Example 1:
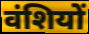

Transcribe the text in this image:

वंशियों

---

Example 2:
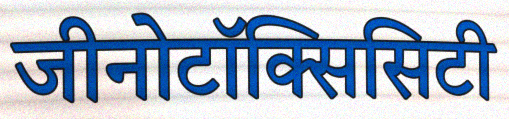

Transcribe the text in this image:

जीनोटॉक्सिसिटी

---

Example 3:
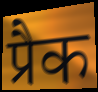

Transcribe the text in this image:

प्रैक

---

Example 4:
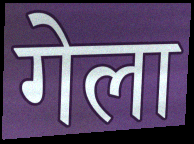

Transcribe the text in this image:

गेला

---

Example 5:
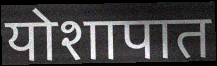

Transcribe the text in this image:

योशापात